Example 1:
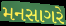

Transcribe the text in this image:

મનસાગરે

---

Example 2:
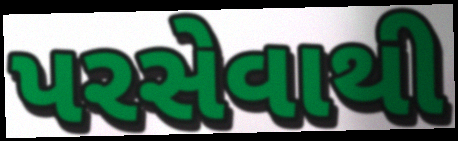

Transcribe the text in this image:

પરસેવાથી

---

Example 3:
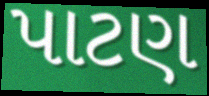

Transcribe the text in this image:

પાટણ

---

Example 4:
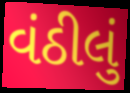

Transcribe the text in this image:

વંઠીલું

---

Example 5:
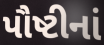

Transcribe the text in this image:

પૌષ્ટીનાં